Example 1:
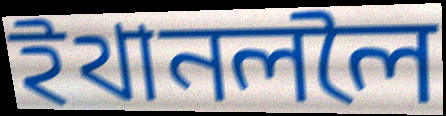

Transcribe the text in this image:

ইথানললৈ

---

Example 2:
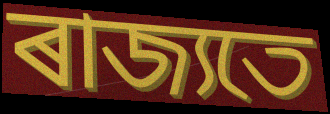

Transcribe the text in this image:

ৰাজ্যতে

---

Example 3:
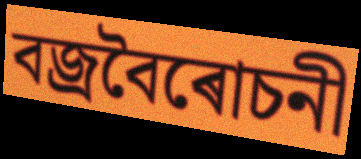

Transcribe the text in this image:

বজ্ৰবৈৰোচনী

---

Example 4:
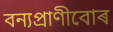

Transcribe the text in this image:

বন্যপ্ৰাণীবোৰ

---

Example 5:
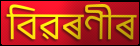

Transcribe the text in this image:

বিৱৰণীৰ